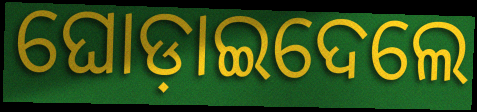
ଘୋଡ଼ାଇଦେଲେ